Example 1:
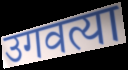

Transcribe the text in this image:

उगवत्या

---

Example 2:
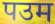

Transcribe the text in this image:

पउम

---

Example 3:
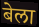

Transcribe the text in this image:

बेला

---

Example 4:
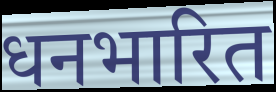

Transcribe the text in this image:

धनभारित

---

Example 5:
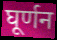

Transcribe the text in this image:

घूर्णन